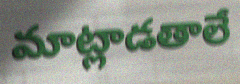
మాట్లాడతాలే